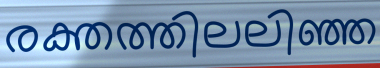
രക്തത്തിലലിഞ്ഞ